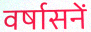
वर्षासनें